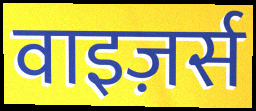
वाइज़र्स